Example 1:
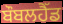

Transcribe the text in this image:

ਬੌਬਲਹੈੱਡ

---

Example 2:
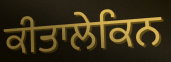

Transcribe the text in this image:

ਕੀਤਾਲੇਕਿਨ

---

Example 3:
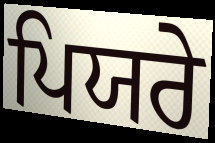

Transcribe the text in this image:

ਪਿਯਰੇ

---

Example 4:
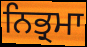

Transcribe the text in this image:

ਨਿਭ੍ਰਮਾ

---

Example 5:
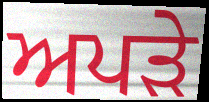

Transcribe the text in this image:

ਅਪੜੇ